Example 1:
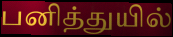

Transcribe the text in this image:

பனித்துயில்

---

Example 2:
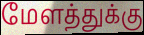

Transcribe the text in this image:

மேளத்துக்கு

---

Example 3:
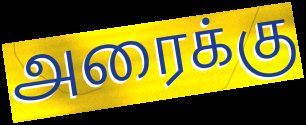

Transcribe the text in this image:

அரைக்கு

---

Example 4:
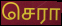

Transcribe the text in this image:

செரா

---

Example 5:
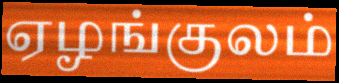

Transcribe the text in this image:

ஏழங்குலம்